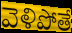
వెళిపోతే